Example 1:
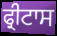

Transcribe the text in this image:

ਫ੍ਰੀਟਾਸ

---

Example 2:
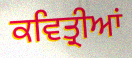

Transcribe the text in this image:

ਕਵਿਤ੍ਰੀਆਂ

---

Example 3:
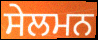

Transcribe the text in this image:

ਸੇਲਮਨ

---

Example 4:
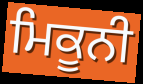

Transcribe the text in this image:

ਮਿਕੂਨੀ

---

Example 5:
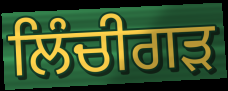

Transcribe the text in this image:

ਲਿੰਚੀਗੜ